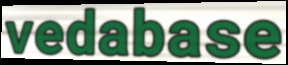
vedabase